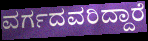
ವರ್ಗದವರಿದ್ದಾರೆ